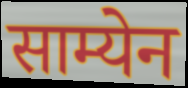
साम्येन